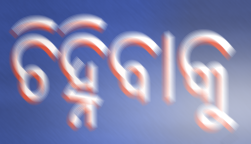
ଚିହ୍ନିବାକୁ